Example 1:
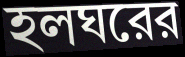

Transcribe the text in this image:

হলঘরের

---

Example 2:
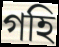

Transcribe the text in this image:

গহি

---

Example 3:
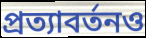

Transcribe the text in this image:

প্রত্যাবর্তনও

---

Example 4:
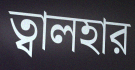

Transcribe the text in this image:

ত্বালহার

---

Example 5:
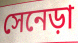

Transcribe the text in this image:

সেনেড়া